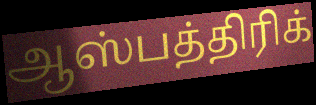
ஆஸ்பத்திரிக்